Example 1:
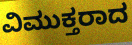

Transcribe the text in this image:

ವಿಮುಕ್ತರಾದ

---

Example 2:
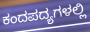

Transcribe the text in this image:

ಕಂದಪದ್ಯಗಳಲ್ಲಿ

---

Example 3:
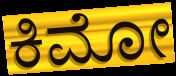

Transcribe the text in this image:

ಕಿಮೋ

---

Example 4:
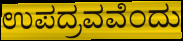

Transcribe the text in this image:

ಉಪದ್ರವವೆಂದು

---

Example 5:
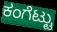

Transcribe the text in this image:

ಕಂಗೆಟ್ಟು